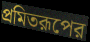
প্রমিতরূপের